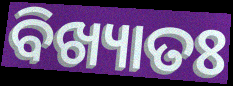
ବିଖ୍ୟାତଃ